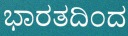
ಭಾರತದಿಂದ